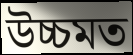
উচ্চমত